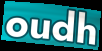
oudh